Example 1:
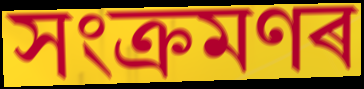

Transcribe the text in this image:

সংক্ৰমণৰ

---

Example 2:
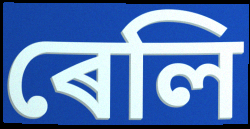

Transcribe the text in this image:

ৰেলি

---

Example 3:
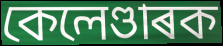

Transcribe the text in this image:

কেলেণ্ডাৰক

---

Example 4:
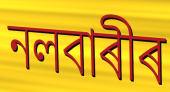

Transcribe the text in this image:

নলবাৰীৰ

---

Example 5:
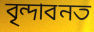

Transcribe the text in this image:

বৃন্দাবনত